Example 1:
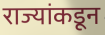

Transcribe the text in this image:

राज्यांकडून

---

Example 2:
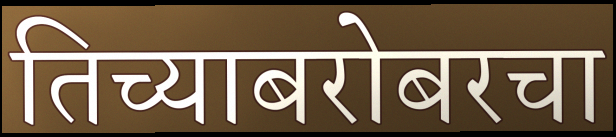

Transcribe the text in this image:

तिच्याबरोबरचा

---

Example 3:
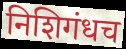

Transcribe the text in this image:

निशिगंधच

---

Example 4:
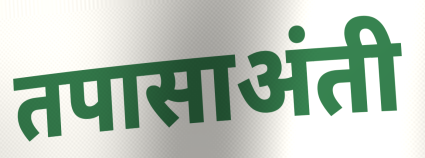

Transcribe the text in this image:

तपासाअंती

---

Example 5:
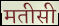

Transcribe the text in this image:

मतीसी